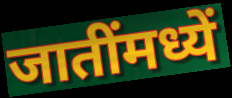
जातींमध्यें